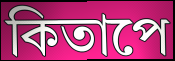
কিতাপে